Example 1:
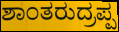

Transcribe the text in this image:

ಶಾಂತರುದ್ರಪ್ಪ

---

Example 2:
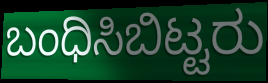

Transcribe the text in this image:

ಬಂಧಿಸಿಬಿಟ್ಟರು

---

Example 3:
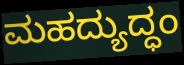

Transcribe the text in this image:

ಮಹದ್ಯುದ್ಧಂ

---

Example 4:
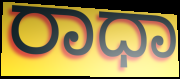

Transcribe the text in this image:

ರಾಧಾ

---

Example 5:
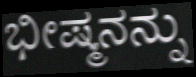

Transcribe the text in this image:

ಭೀಷ್ಮನನ್ನು